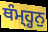
ਥੰਮ੍ਹ੍ਹਨੁ